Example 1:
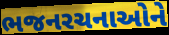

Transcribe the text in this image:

ભજનરચનાઓને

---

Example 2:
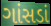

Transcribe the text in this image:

ગાંસડાં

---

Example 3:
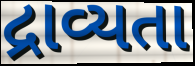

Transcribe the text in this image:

દ્રાવ્યતા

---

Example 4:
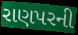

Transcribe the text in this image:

રાણપરની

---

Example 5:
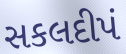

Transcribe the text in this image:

સકલદીપં